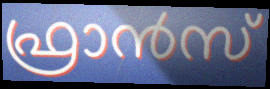
ഫ്രാൻസ്